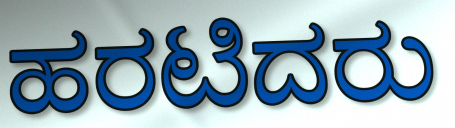
ಹರಟಿದರು